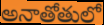
అనాతోతులో